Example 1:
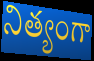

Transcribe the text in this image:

నిత్యంగా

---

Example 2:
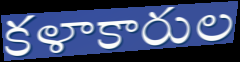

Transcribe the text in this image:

కళాకారుల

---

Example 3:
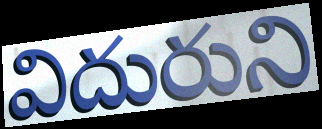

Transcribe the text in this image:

విదురుని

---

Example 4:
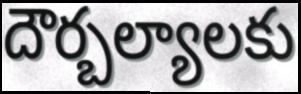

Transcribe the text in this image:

దౌర్బల్యాలకు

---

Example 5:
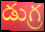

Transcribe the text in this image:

డుగ్ర